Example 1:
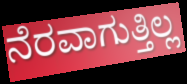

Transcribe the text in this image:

ನೆರವಾಗುತ್ತಿಲ್ಲ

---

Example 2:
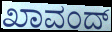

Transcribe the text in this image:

ಖಾವಂದ್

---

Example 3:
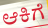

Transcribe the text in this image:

ಆಕಿಗೆ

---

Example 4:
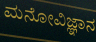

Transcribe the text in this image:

ಮನೋವಿಜ್ಞಾನ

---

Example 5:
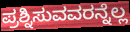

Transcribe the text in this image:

ಪ್ರಶ್ನಿಸುವವರನ್ನೆಲ್ಲ